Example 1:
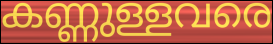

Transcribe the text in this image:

കണ്ണുള്ളവരെ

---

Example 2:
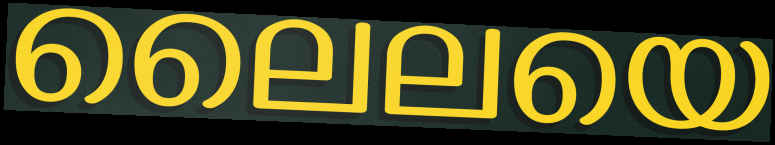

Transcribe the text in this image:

ലൈലയെ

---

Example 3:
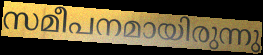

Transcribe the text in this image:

സമീപനമായിരുന്നു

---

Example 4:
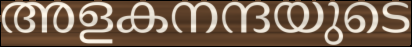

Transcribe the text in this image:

അളകനന്ദയുടെ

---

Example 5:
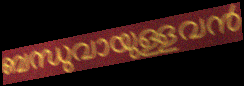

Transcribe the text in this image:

ബന്ധുവായുള്ളവൻ